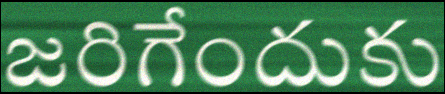
జరిగేందుకు